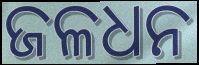
ଜଳଧନ